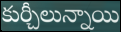
కుర్చీలున్నాయి